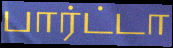
பார்ட்டா